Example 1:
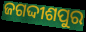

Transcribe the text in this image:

ଜଗଦ୍ଦୀଶପୁର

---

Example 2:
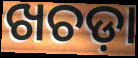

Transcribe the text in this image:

ଖଚଡ଼ା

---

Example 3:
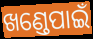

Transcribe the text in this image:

ଖଣ୍ଡେପାଇଁ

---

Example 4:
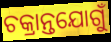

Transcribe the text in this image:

ଚକ୍ରାନ୍ତଯୋଗୁଁ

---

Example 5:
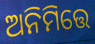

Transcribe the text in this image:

ଅନିମିତ୍ତେ